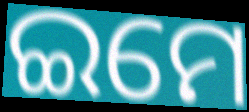
ଇମେ